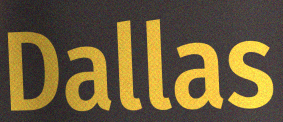
Dallas